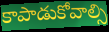
కాపాడుకోవాల్సి